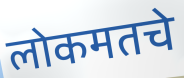
लोकमतचे